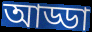
আড্ডা